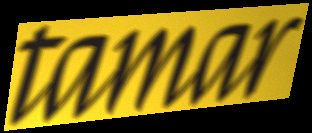
tamar